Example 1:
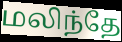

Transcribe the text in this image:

மலிந்தே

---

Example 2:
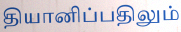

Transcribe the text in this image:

தியானிப்பதிலும்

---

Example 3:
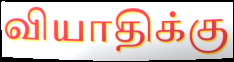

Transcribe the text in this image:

வியாதிக்கு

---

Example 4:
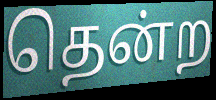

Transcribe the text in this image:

தென்ற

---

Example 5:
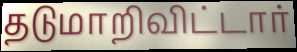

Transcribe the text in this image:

தடுமாறிவிட்டார்